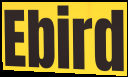
Ebird